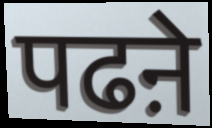
पढऩे